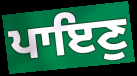
ਪਾਇਣੁ